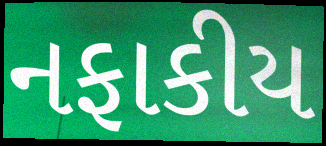
નફાકીય